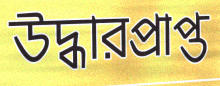
উদ্ধারপ্রাপ্ত